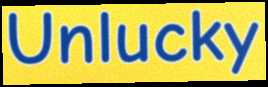
Unlucky